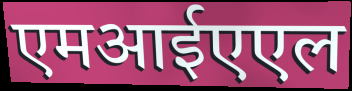
एमआईएएल